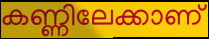
കണ്ണിലേക്കാണ്